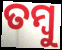
ତମ୍ବୁ